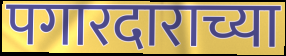
पगारदाराच्या